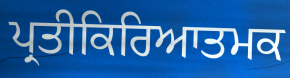
ਪ੍ਰਤੀਕਿਰਿਆਤਮਕ